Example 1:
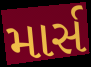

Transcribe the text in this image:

માર્સ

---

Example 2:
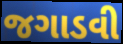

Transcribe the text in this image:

જગાડવી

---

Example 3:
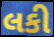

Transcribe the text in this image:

લકી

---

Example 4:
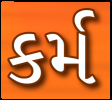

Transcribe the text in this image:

કર્મ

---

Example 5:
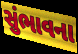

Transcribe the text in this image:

સુંભાવના